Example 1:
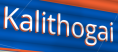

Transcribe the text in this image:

Kalithogai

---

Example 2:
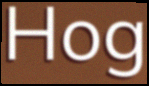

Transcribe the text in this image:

Hog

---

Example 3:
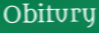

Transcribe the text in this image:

Obitury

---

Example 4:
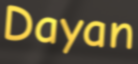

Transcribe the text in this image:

Dayan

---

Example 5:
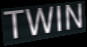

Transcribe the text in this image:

TWIN